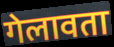
गेलावता